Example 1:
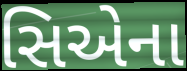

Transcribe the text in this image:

સિએના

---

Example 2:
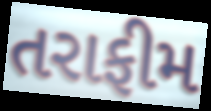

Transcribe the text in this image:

તરાફીમ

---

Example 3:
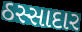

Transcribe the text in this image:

ઠસ્સાદાર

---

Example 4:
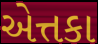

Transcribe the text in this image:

એત્તકા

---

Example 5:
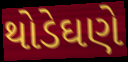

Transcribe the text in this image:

થોડેઘણે